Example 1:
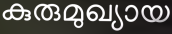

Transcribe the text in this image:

കുരുമുഖ്യായ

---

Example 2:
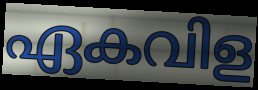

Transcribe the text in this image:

ഏകവിള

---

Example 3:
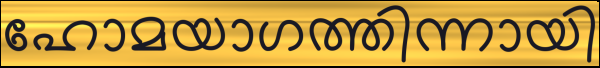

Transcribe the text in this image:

ഹോമയാഗത്തിന്നായി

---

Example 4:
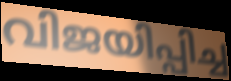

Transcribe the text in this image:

വിജയിപ്പിച്ച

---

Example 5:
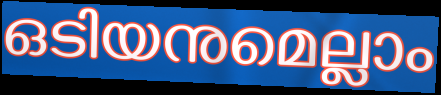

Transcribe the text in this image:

ഒടിയനുമെല്ലാം